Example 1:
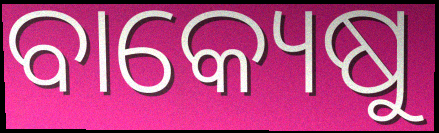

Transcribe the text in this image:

ବାକ୍ୟେଷୁ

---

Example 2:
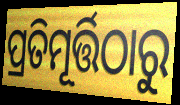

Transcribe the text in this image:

ପ୍ରତିମୂର୍ତ୍ତିଠାରୁ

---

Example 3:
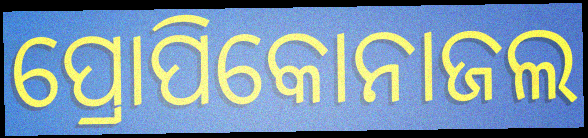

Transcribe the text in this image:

ପ୍ରୋପିକୋନାଜଲ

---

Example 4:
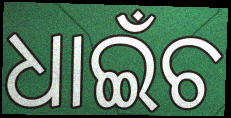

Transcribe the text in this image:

ଧାଇଁଚ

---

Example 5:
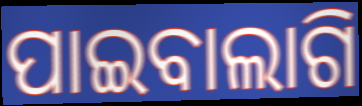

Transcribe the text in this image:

ପାଇବାଲାଗି